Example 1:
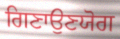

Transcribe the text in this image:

ਗਿਣਾਉਣਯੋਗ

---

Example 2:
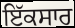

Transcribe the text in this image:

ਇੱਕਸਾਰ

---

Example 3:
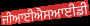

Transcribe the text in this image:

ਜੀਆਈਐਸਆਈਡੀ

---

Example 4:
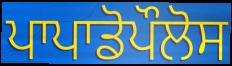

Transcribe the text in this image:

ਪਾਪਾਡੋਪੌਲੋਸ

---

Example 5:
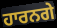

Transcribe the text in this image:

ਹਾਰਨਗੇ